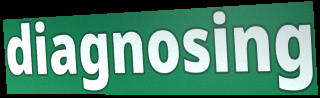
diagnosing